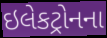
ઇલેકટ્રોનના